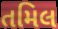
તમિલ